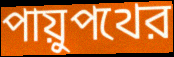
পায়ুপথের